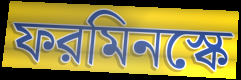
ফরমিনস্কে